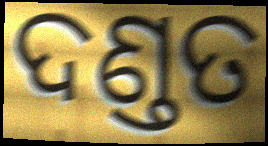
ଦଣ୍ଡତ